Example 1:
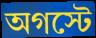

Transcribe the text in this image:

অগস্টে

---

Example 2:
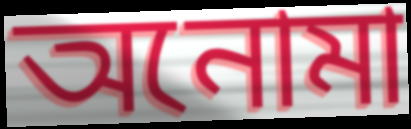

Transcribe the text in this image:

অনোমা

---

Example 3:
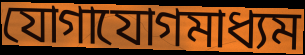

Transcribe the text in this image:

যোগাযোগমাধ্যম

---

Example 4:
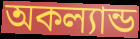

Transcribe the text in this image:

অকল্যান্ড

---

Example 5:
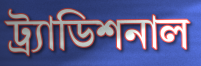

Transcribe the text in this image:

ট্র্যাডিশনাল